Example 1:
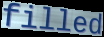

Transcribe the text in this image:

filled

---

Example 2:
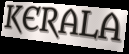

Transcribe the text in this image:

KERALA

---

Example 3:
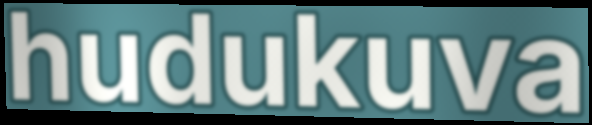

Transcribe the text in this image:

hudukuva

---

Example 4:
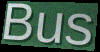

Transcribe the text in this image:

Bus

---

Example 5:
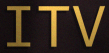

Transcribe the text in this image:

ITV